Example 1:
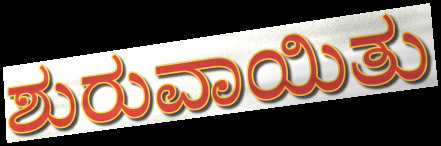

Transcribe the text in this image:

ಶುರುವಾಯಿತು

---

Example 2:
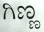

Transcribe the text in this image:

ಗಿಣ್ಣ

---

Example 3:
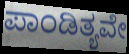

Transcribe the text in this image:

ಪಾಂಡಿತ್ಯವೇ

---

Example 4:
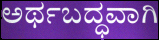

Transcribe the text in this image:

ಅರ್ಥಬದ್ಧವಾಗಿ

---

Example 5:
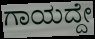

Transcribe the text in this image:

ಗಾಯದ್ದೇ